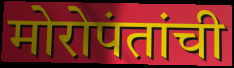
मोरोपंतांची